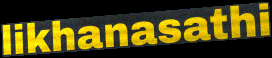
likhanasathi